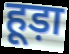
हूड़ा